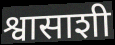
श्वासाशी